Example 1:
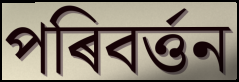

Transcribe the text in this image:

পৰিবৰ্ত্তন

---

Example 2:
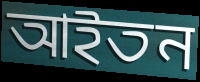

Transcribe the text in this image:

আইতন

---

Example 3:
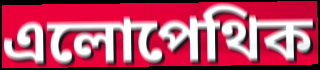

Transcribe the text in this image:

এলোপেথিক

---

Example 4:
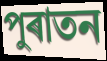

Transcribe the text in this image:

পুৰাতন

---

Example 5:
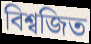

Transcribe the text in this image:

বিশ্বজিত